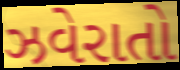
ઝવેરાતો